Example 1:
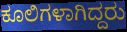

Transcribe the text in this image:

ಕೂಲಿಗಳಾಗಿದ್ದರು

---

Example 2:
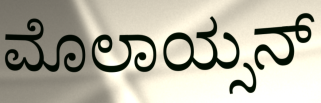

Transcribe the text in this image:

ಮೊಲಾಯ್ಸನ್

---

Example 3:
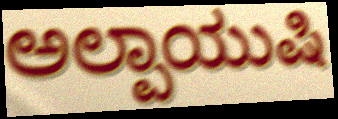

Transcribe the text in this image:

ಅಲ್ಪಾಯುಷಿ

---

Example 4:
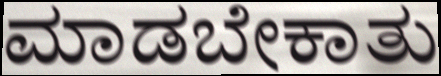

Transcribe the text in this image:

ಮಾಡಬೇಕಾತು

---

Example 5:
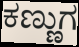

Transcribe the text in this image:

ಕಣ್ಣುಗ